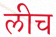
लीच